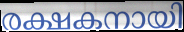
രക്ഷകനായി